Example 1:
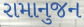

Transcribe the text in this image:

રામાનુજન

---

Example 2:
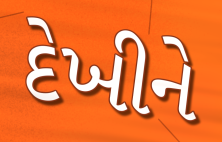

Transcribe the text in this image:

દેખીને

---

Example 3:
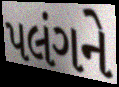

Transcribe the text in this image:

પલંગને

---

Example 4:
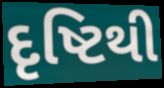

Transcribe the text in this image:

દૃષ્ટિથી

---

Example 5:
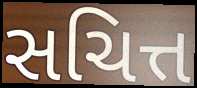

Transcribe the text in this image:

સચિત્ત